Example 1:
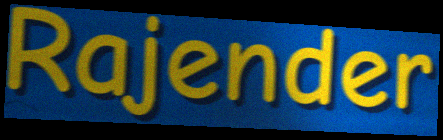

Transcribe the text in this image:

Rajender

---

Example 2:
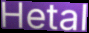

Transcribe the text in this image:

Hetal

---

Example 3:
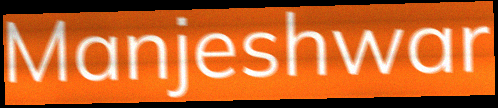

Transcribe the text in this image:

Manjeshwar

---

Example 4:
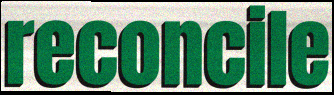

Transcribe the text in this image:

reconcile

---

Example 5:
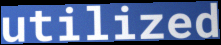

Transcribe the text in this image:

utilized